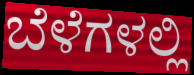
ಬೆಳೆಗಳಲ್ಲಿ